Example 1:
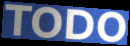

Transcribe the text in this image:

TODO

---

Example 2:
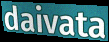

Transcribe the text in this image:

daivata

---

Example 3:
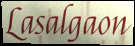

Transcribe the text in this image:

Lasalgaon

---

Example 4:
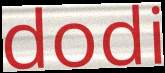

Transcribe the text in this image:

dodi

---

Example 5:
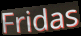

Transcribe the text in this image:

Fridas